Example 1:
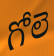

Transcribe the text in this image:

గోలె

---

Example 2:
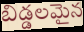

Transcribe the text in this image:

బిడ్డలమైన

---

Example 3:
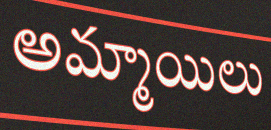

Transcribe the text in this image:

అమ్మాయిలు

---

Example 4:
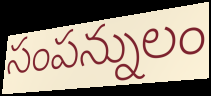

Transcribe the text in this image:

సంపన్నులం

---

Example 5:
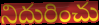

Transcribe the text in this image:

నిదురించు